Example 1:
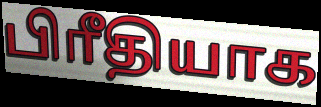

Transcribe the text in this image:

பிரீதியாக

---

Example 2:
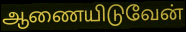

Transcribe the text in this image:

ஆணையிடுவேன்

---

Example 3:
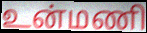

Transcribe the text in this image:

உன்மணி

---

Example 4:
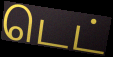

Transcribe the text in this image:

டெட்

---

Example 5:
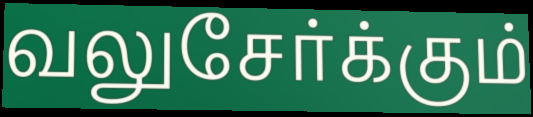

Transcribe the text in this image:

வலுசேர்க்கும்